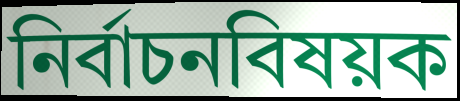
নির্বাচনবিষয়ক